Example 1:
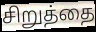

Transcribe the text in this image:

சிறுத்தை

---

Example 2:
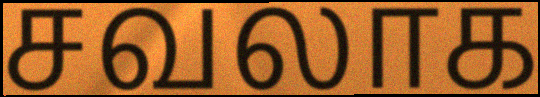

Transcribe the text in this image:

சவலாக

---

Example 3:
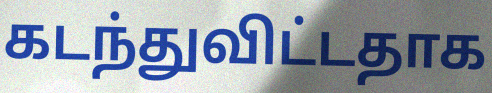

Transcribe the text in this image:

கடந்துவிட்டதாக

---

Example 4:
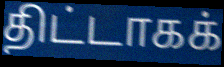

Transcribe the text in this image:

திட்டாகக்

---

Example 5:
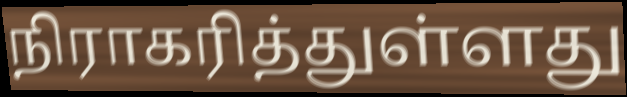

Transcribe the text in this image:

நிராகரித்துள்ளது